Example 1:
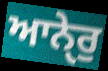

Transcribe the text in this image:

ਆਨੇੑਰੁ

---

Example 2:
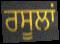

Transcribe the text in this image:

ਰਸੂਲਾਂ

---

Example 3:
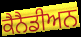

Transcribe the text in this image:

ਕੈਨੈਡੀਅਨ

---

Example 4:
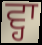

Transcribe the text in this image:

ਵ੍ਹਾ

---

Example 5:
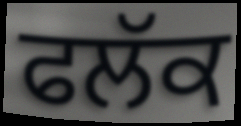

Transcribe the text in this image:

ਫਲੱਕ